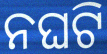
ନଘଟି